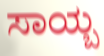
ಸಾಯ್ಬ